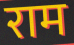
राम